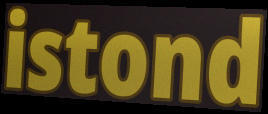
istond